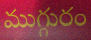
ముగ్గురం